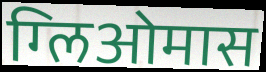
ग्लिओमास